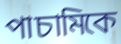
পাচামিকে